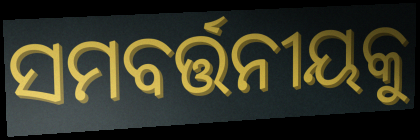
ସମବର୍ତ୍ତନୀୟକୁ